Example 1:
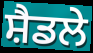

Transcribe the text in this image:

ਸ਼ੈਡਲੇ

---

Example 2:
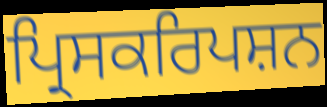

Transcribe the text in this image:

ਪ੍ਰਿਸਕਰਿਪਸ਼ਨ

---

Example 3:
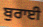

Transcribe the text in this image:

ਬੁਰਾਈ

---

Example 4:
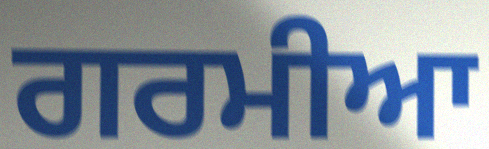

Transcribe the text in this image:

ਗਰਮੀਆ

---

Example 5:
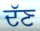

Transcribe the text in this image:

ਦੱਣ